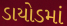
ડાયોડમાં